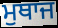
ਮੁਥਾਜ